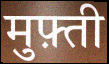
मुफ़्ती